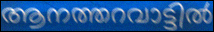
ആനത്തറവാട്ടിൽ